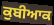
ਕੁਬੀਆਕ